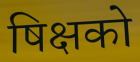
षिक्षको